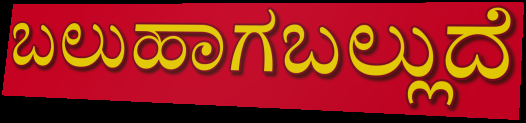
ಬಲುಹಾಗಬಲ್ಲುದೆ